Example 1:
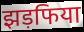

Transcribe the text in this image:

झड़फिया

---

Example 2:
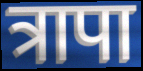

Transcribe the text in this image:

त्रापा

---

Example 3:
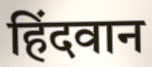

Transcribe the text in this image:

हिंदवान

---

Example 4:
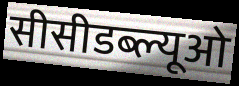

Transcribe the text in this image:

सीसीडब्ल्यूओ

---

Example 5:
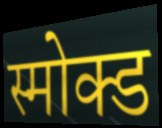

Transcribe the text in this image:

स्मोक्ड